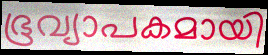
ഭൂവ്യാപകമായി